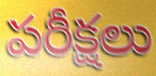
పరీక్షలు